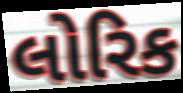
લોરિક